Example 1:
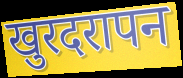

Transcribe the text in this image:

खुरदरापन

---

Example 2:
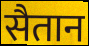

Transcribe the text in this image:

सैतान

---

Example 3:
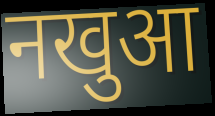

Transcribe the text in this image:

नखुआ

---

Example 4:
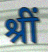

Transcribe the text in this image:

श्रीं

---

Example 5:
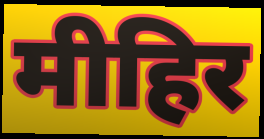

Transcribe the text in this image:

मीहिर